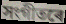
সংগীতৰে